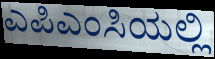
ಎಪಿಎಂಸಿಯಲ್ಲಿ